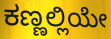
ಕಣ್ಣಲ್ಲಿಯೇ